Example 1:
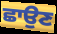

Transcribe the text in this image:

ਛਾਉਣ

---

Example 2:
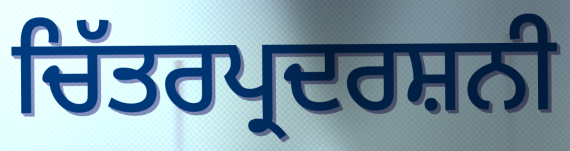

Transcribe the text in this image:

ਚਿੱਤਰਪ੍ਰਦਰਸ਼ਨੀ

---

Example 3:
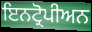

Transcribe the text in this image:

ਇਨਟ੍ਰੋਪੀਅਨ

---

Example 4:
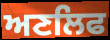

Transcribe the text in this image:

ਅਣਲਿਫ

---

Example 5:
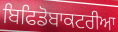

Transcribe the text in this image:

ਬਿਫਿਡੋਬਾਕਟਰੀਆ